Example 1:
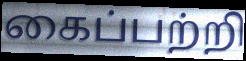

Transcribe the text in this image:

கைப்பற்றி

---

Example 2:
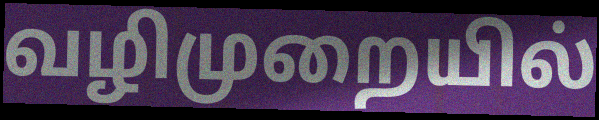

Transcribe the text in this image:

வழிமுறையில்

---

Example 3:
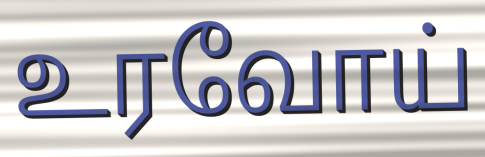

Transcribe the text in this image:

உரவோய்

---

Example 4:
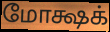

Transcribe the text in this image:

மோக்ஷக்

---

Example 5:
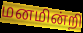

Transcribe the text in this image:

மனமின்றி